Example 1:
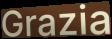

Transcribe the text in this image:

Grazia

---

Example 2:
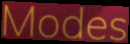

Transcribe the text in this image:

Modes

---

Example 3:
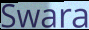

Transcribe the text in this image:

Swara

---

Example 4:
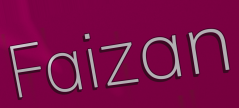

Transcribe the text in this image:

Faizan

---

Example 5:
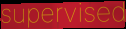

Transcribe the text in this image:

supervised